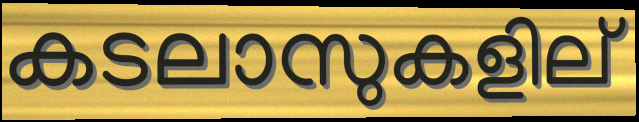
കടലാസുകളില്